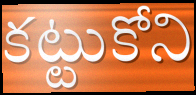
కట్టుకోని